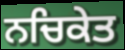
ਨਚਿਕੇਤ